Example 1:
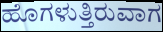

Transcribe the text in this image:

ಹೊಗಳುತ್ತಿರುವಾಗ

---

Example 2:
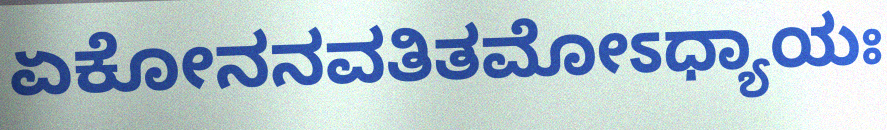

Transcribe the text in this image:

ಏಕೋನನವತಿತಮೋಽಧ್ಯಾಯಃ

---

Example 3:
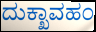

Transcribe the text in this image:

ದುಕ್ಖಾವಹಂ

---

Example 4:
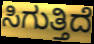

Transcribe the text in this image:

ಸಿಗುತ್ತಿದೆ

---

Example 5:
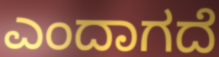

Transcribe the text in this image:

ಎಂದಾಗದೆ